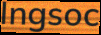
Ingsoc